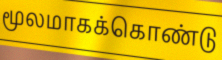
மூலமாகக்கொண்டு